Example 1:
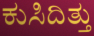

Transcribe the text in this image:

ಕುಸಿದಿತ್ತು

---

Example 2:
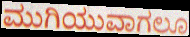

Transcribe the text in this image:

ಮುಗಿಯುವಾಗಲೂ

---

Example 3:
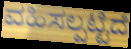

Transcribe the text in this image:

ವಹಿಸಲ್ಪಟ್ಟಿದೆ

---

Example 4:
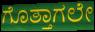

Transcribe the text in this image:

ಗೊತ್ತಾಗಲೇ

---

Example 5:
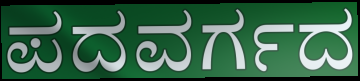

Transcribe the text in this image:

ಪದವರ್ಗದ